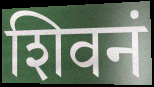
शिवनं